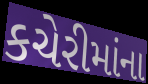
કચેરીમાંના